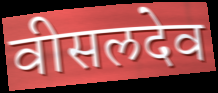
वीसलदेव